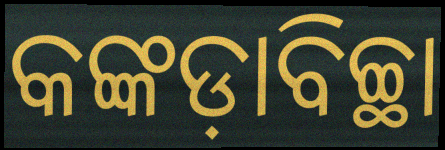
କଙ୍କଡ଼ାବିଚ୍ଛା